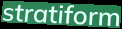
stratiform